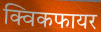
क्विकफायर